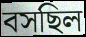
বসছিল